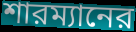
শারম্যানের